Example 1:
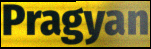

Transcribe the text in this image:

Pragyan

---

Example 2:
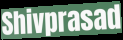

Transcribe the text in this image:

Shivprasad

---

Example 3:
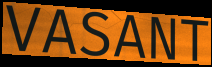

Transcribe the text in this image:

VASANT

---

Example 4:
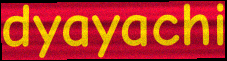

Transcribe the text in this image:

dyayachi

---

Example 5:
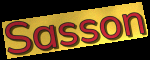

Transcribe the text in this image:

Sasson